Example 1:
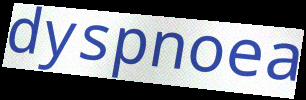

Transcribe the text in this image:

dyspnoea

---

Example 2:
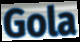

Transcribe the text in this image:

Gola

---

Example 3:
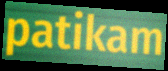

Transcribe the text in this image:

patikam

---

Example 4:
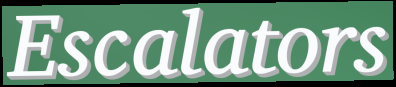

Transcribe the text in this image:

Escalators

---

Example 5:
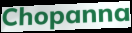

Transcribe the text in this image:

Chopanna